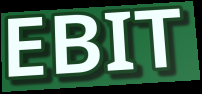
EBIT